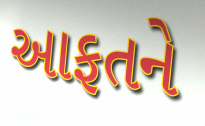
આફતને